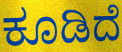
ಕೂಡಿದೆ